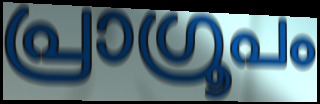
പ്രാഗ്രൂപം